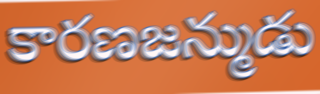
కారణజన్ముడు